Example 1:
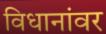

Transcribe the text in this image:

विधानांवर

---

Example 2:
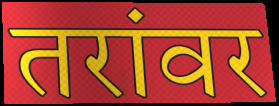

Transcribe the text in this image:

तरांवर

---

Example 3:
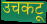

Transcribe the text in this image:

उचकटू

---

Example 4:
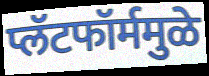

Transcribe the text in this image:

प्लॅटफॉर्ममुळे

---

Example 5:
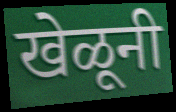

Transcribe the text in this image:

खेळूनी